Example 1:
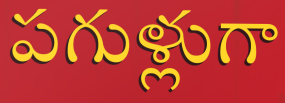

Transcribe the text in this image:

పగుళ్లుగా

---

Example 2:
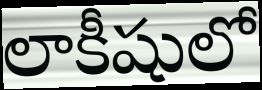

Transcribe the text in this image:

లాకీషులో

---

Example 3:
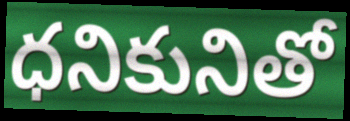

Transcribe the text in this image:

ధనికునితో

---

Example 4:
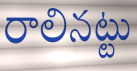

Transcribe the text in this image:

రాలినట్టు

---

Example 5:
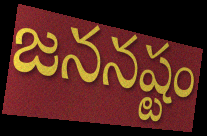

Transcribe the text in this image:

జననష్టం